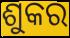
ଶୁକର